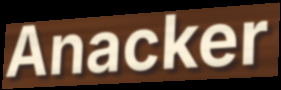
Anacker